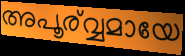
അപൂര്വ്വമായേ